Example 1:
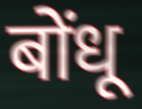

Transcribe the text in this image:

बोंधू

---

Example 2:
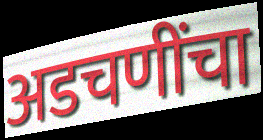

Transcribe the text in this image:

अडचणींचा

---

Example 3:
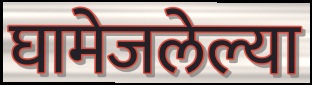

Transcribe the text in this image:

घामेजलेल्या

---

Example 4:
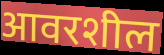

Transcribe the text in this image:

आवरशील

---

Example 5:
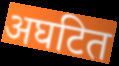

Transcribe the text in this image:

अघटित